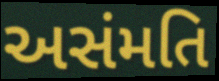
અસંમતિ